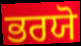
ਭਰਯੋ